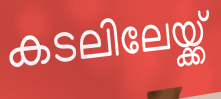
കടലിലേയ്ക്ക്